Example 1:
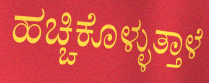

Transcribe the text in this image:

ಹಚ್ಚಿಕೊಳ್ಳುತ್ತಾಳೆ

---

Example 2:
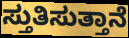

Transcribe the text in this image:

ಸ್ತುತಿಸುತ್ತಾನೆ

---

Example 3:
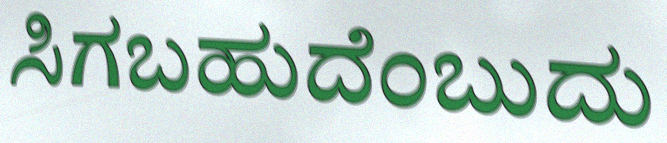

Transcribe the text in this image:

ಸಿಗಬಹುದೆಂಬುದು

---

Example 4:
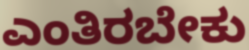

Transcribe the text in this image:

ಎಂತಿರಬೇಕು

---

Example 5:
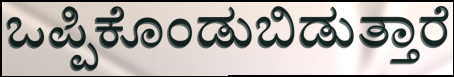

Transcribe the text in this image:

ಒಪ್ಪಿಕೊಂಡುಬಿಡುತ್ತಾರೆ